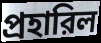
প্রহারিল